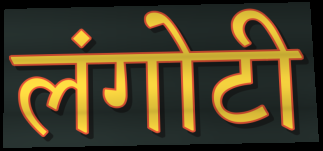
लंगोटी